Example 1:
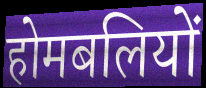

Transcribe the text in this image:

होमबलियों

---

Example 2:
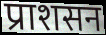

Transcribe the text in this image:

प्राशसन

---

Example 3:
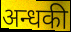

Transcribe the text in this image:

अन्धकी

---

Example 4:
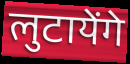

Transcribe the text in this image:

लुटायेंगे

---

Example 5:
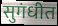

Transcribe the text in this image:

सुगंधीत